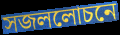
সজললোচনে